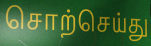
சொற்செய்து